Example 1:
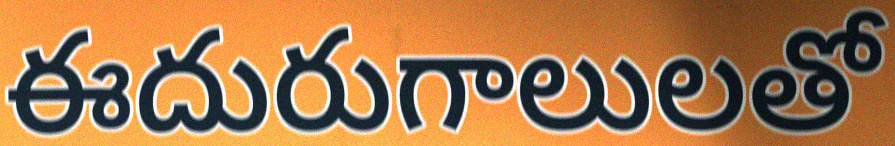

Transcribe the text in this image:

ఈదురుగాలులతో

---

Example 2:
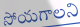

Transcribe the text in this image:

సోయగాలని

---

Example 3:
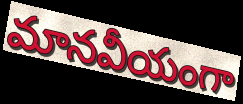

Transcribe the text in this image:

మానవీయంగా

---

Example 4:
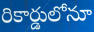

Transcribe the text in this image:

రికార్డులోనూ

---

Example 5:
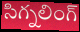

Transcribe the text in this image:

సిగ్నలింగ్